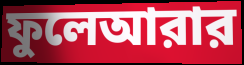
ফুলেআরার